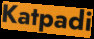
Katpadi